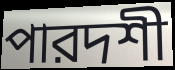
পারদশী